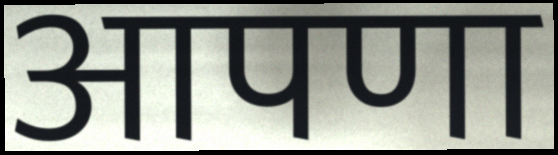
आपणा